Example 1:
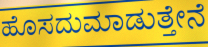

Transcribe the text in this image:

ಹೊಸದುಮಾಡುತ್ತೇನೆ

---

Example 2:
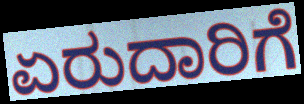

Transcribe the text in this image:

ಏರುದಾರಿಗೆ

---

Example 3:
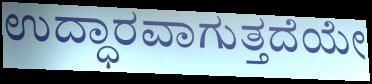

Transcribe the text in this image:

ಉದ್ಧಾರವಾಗುತ್ತದೆಯೇ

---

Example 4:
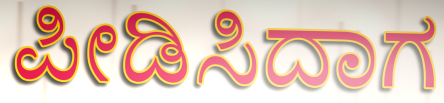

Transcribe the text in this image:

ಪೀಡಿಸಿದಾಗ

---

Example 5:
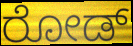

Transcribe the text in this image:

ರೋಡ್